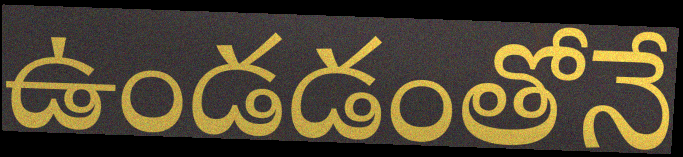
ఉండడంతోనే